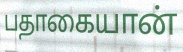
பதாகையான்